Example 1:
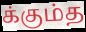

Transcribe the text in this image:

க்கும்த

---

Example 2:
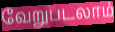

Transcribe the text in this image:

வேறுபடலாம்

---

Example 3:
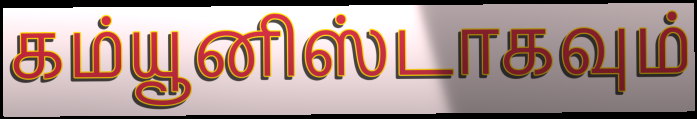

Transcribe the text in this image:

கம்யூனிஸ்டாகவும்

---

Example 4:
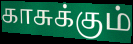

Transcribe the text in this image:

காசுக்கும்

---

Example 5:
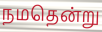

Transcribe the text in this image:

நமதென்று